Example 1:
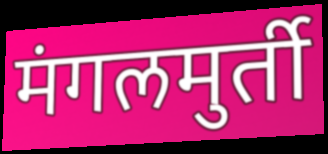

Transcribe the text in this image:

मंगलमुर्ती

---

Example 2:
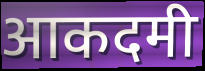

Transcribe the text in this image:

आकदमी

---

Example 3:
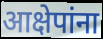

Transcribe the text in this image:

आक्षेपांना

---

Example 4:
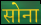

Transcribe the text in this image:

सोना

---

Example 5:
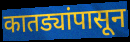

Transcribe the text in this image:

कातड्यांपासून